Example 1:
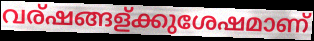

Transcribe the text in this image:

വര്ഷങ്ങള്ക്കുശേഷമാണ്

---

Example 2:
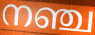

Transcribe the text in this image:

നഞ്ച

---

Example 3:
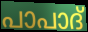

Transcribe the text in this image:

പാപാദ്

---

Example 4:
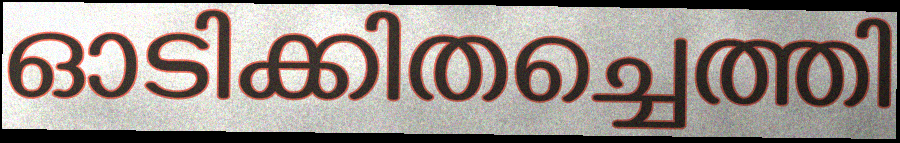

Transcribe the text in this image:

ഓടിക്കിതച്ചെത്തി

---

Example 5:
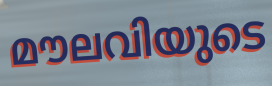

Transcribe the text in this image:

മൗലവിയുടെ